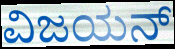
ವಿಜಯನ್